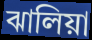
ঝালিয়া